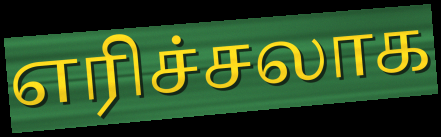
எரிச்சலாக